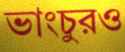
ভাংচুরও